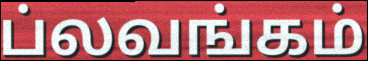
ப்லவங்கம்